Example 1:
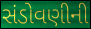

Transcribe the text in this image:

સંડોવણીની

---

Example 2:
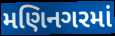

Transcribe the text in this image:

મણિનગરમાં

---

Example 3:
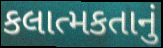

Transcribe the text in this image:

કલાત્મકતાનું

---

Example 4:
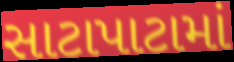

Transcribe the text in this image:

સાટાપાટામાં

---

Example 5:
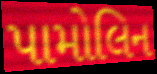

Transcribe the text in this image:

પામોલિન